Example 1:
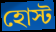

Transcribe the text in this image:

হোস্ট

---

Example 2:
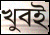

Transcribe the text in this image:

খুবই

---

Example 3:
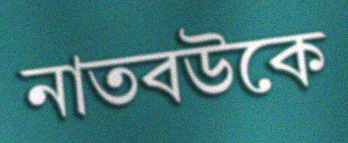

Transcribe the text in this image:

নাতবউকে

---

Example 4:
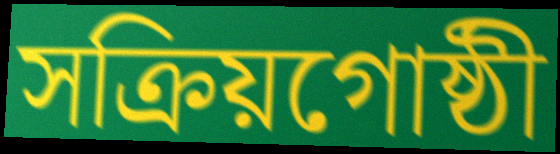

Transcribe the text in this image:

সক্রিয়গোষ্ঠী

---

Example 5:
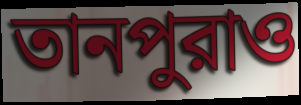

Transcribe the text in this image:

তানপুরাও